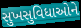
સુખસુવિધાઓને